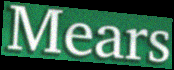
Mears